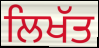
ਲਿਖੱਤ